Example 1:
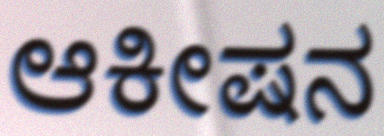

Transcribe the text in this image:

ಆಕೀಷನ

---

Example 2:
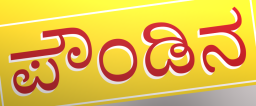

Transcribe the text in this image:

ಪೌಂಡಿನ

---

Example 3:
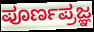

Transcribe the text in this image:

ಪೂರ್ಣಪ್ರಜ್ಞ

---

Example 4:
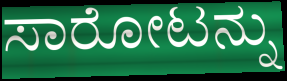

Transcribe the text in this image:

ಸಾರೋಟನ್ನು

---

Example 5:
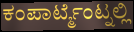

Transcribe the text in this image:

ಕಂಪಾರ್ಟ್ಮೆಂಟ್ನಲ್ಲಿ